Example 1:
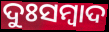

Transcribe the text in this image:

ଦୁଃସମ୍ବାଦ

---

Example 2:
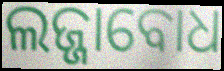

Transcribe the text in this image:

ଲଜ୍ଜାବୋଧ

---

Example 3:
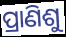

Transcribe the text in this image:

ପ୍ରାଣିଶୁ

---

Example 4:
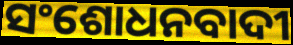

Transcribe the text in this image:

ସଂଶୋଧନବାଦୀ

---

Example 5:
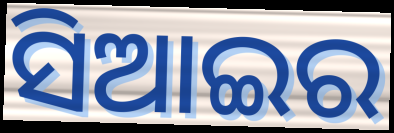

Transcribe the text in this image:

ସିଆଇର